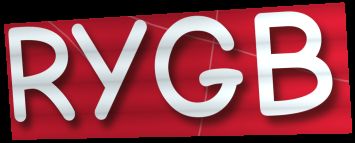
RYGB